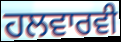
ਹਲਵਾਰਵੀ